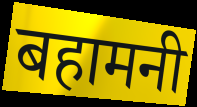
बहामनी